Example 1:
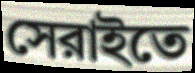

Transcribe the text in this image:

সেরাইতে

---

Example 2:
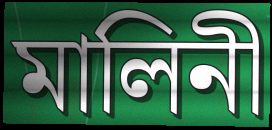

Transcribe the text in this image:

মালিনী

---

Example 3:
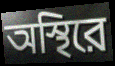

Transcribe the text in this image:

অস্থিরে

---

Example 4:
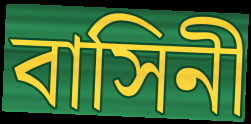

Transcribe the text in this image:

বাসিনী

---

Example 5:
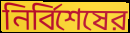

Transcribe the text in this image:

নির্বিশেষের